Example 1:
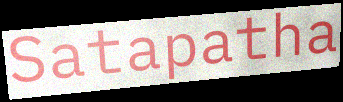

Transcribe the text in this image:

Satapatha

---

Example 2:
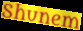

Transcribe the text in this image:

Shunem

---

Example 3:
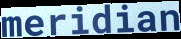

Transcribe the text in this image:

meridian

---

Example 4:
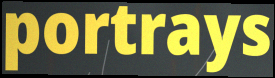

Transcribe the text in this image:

portrays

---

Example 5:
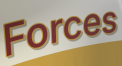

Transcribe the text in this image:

Forces